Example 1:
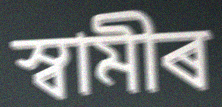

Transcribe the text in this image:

স্বামীৰ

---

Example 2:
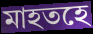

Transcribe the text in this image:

মাহতহে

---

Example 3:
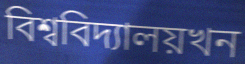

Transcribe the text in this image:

বিশ্ববিদ্যালয়খন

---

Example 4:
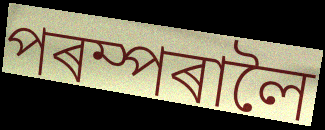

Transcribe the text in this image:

পৰম্পৰালৈ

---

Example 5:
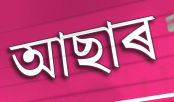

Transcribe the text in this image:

আছাৰ